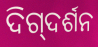
ଦିଗ୍‌ଦର୍ଶନ